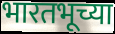
भारतभूच्या